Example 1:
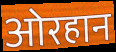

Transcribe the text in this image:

ओरहान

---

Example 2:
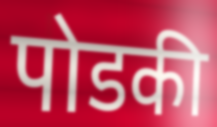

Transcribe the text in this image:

पोडकी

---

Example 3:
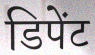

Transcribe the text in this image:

डिपेंट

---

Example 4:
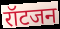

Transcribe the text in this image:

रॉटजन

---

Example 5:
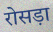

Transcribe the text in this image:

रोसड़ा